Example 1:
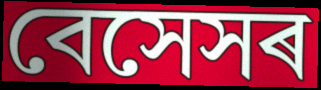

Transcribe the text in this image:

বেসেসৰ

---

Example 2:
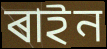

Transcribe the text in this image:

ৰাইন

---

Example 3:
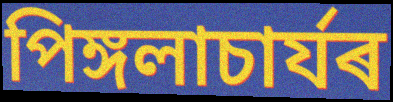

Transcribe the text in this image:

পিঙ্গলাচাৰ্যৰ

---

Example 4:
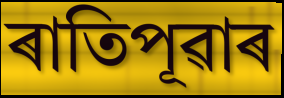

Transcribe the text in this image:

ৰাতিপূৱাৰ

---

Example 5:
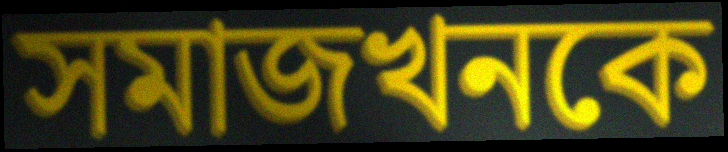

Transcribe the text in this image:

সমাজখনকে